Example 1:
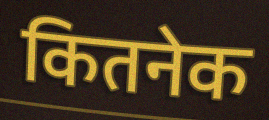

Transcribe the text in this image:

कितनेक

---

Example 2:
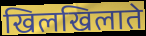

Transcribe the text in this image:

खिलखिलाते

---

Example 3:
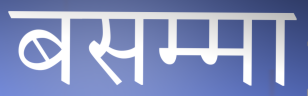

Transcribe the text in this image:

बसम्मा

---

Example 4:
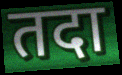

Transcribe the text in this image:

तदा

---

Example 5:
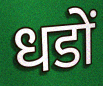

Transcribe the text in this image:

धडों